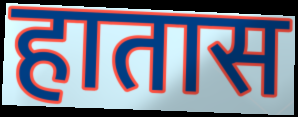
हातास